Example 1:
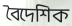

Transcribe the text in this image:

বৈদেশিক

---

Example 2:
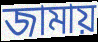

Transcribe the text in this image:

জামায়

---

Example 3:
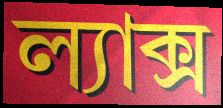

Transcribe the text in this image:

ল্যাক্স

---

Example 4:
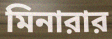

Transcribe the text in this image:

মিনারার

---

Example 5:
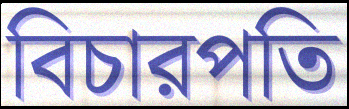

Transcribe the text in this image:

বিচারপতি